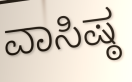
ವಾಸಿಷ್ಠ